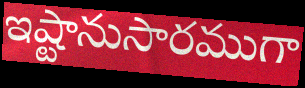
ఇష్టానుసారముగా